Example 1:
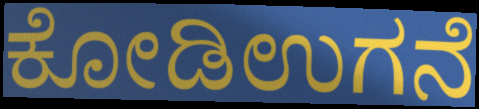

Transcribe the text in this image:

ಕೋಡಿಉಗನೆ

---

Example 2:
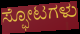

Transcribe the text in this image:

ಸ್ಫೋಟಗಳು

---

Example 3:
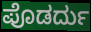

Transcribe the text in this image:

ಪೊಡರ್ದು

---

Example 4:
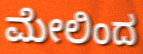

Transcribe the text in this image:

ಮೇಲಿಂದ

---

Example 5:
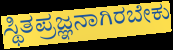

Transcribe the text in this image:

ಸ್ಥಿತಪ್ರಜ್ಞನಾಗಿರಬೇಕು